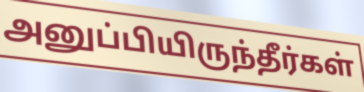
அனுப்பியிருந்தீர்கள்